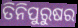
ତିନିପୁରୁଷର